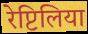
रेप्टिलिया